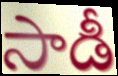
సాడీ